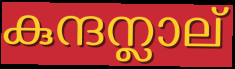
കുന്ദന്ലാല്